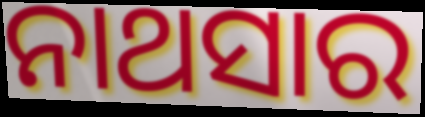
ନାଥସାର